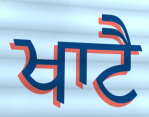
ਖਾਟੈ